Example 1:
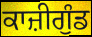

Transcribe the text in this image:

ਕਾਜ਼ੀਗੁੰਡ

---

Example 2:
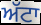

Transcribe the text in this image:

ਅੱਟਾ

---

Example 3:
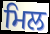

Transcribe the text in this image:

ਮਿਲ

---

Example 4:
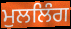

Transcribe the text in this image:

ਮੁਲਲਿੰਗ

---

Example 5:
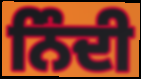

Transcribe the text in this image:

ਨਿੰਦੀ